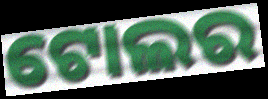
ଟୋଲର